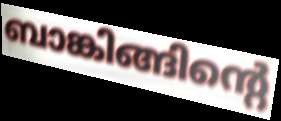
ബാങ്കിങ്ങിന്റെ